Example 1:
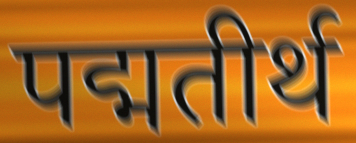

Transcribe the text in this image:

पद्मतीर्थ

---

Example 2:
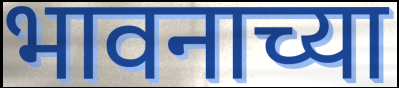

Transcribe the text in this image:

भावनाच्या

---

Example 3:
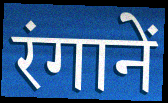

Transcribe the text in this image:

रंगानें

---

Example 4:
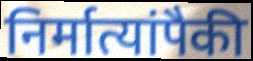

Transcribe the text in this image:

निर्मात्यांपैकी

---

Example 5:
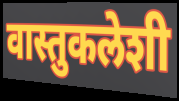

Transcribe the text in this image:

वास्तुकलेशी